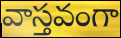
వాస్తవంగా